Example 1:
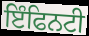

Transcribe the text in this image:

ਇੰਫਿਨਟੀ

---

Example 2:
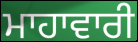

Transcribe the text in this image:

ਮਾਹਾਵਾਰੀ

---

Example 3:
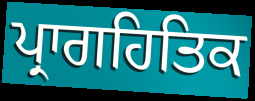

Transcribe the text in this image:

ਪ੍ਰਾਗਹਿਤਿਕ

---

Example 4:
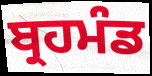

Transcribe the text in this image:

ਬ੍ਰਹਮੰਡ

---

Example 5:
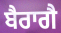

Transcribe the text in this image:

ਬੈਰਾਗੈ